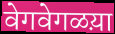
वेगवेगळय़ा